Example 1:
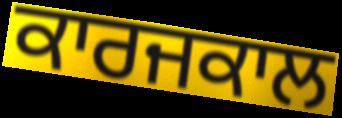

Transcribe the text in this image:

ਕਾਰਜਕਾਲ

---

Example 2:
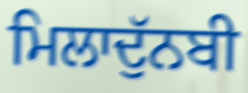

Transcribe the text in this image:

ਮਿਲਾਦੁੱਨਬੀ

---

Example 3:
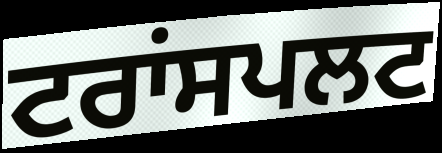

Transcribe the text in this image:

ਟਰਾਂਸਪਲਟ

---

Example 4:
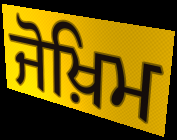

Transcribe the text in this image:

ਜੋਖ਼ਿਮ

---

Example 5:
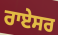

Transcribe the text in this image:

ਰਾਏਸਰ